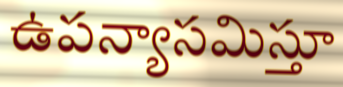
ఉపన్యాసమిస్తూ